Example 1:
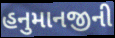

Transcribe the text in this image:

હનુમાનજીની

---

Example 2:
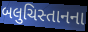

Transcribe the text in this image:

બલુચિસ્તાનના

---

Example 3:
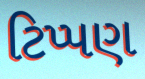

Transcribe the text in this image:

ટિપ્પણ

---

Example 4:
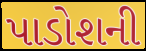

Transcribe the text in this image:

પાડોશની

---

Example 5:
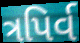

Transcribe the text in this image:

ત્રપિર્વ